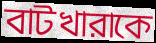
বাটখারাকে